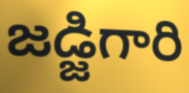
జడ్జిగారి